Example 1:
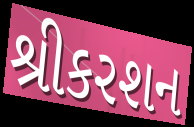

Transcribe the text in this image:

શ્રીકરશન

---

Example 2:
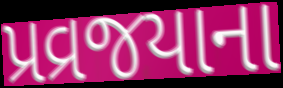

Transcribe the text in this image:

પ્રવ્રજયાના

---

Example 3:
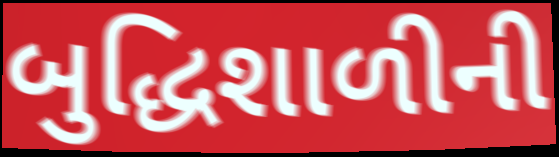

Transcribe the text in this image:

બુદ્ધિશાળીની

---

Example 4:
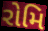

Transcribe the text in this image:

રોમિ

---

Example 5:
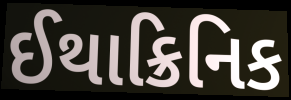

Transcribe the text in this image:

ઈથાક્રિનિક